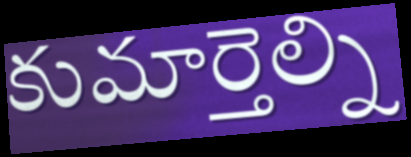
కుమార్తెల్ని